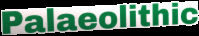
Palaeolithic